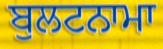
ਬੁਲਟਨਾਮਾ